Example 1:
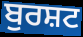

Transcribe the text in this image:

ਬੁਰਸ਼ਟ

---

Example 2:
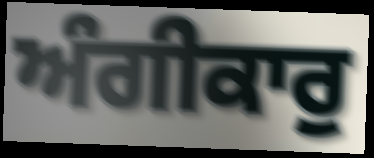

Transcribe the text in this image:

ਅੰਗੀਕਾਰੁ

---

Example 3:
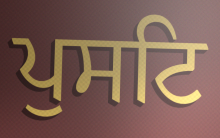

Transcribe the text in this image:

ਪੁਸਟਿ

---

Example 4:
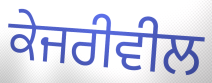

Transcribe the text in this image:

ਕੇਜਰੀਵੀਲ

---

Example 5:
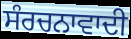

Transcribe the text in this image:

ਸੰਰਚਨਾਵਾਦੀ